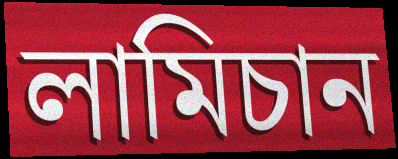
লামিচান